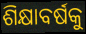
ଶିକ୍ଷାବର୍ଷକୁ